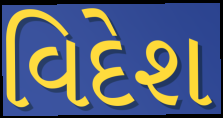
વિદેશ